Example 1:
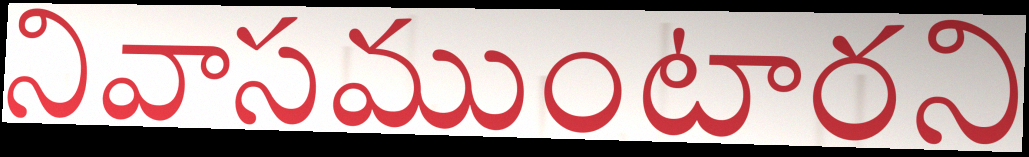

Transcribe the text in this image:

నివాసముంటారని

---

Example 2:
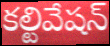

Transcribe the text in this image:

కల్టివేషన్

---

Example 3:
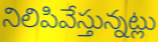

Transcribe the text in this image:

నిలిపివేస్తున్నట్లు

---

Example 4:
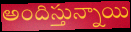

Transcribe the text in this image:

అందిస్తున్నాయి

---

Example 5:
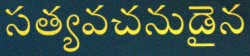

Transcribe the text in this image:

సత్యవచనుడైన